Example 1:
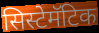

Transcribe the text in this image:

सिस्टेमॅटिक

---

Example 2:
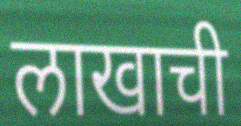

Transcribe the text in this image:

लाखाची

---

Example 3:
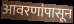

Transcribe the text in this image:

आवरणांपासून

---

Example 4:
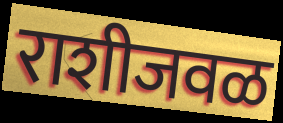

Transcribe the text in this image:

राशीजवळ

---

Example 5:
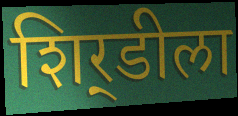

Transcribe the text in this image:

शिर्डीला